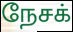
நேசக்